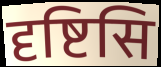
दृष्टिसि